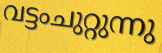
വട്ടംചുറ്റുന്നു